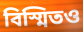
বিস্মিতও